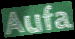
Aufa